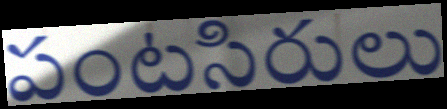
పంటసిరులు